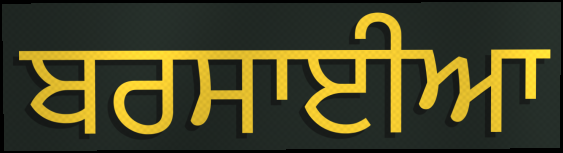
ਬਰਸਾਈਆ